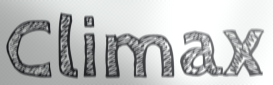
Climax